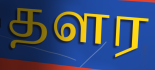
தளர